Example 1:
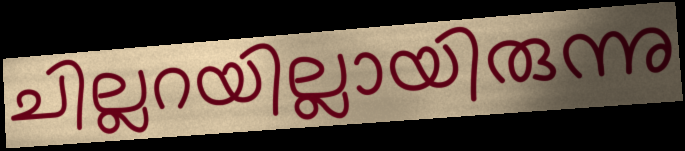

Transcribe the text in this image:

ചില്ലറയില്ലായിരുന്നു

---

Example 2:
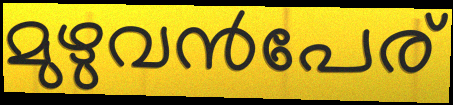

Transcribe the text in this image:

മുഴുവൻപേര്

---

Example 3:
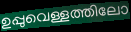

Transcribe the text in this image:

ഉപ്പുവെള്ളത്തിലോ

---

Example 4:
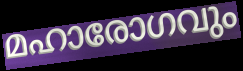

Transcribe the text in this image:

മഹാരോഗവും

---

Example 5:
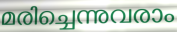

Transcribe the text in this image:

മരിച്ചെന്നുവരാം